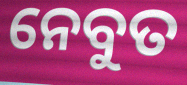
ନେବୁତ